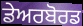
ਡੇਅਰਬੋਰਡ